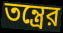
তন্ত্রের